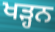
ਖੜ੍ਹਨ